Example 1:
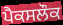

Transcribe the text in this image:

ਪੈਕਸਲੌਕ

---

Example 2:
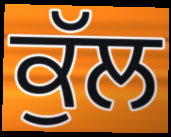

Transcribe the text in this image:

ਕੁੱਲ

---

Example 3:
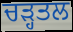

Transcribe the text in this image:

ਚੜ੍ਹਤਲ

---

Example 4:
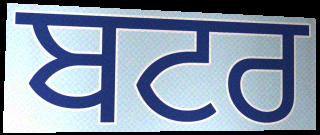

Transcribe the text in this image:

ਬਟਰ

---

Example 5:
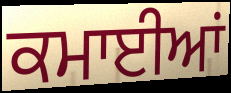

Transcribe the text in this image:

ਕਮਾਈਆਂ